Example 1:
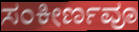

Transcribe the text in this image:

ಸಂಕೀರ್ಣವೂ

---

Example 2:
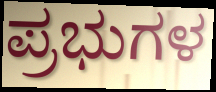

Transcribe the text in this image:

ಪ್ರಭುಗಳ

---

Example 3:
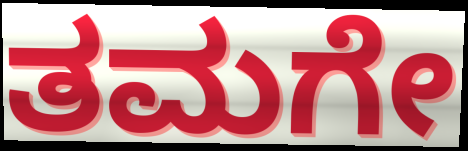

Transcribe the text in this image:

ತಮಗೇ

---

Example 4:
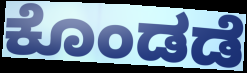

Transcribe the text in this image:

ಕೊಂಡಡೆ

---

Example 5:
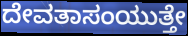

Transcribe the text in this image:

ದೇವತಾಸಂಯುತ್ತೇ